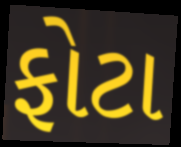
ફોટા